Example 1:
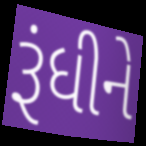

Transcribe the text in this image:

રૂંધીને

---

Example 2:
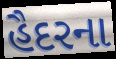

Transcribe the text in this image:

હૈદરના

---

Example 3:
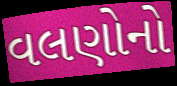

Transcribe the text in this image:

વલણોનો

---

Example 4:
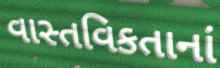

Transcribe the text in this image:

વાસ્તવિકતાનાં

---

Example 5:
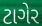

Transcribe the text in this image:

ટાગેર